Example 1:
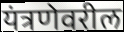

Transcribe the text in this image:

यंत्रणेवरील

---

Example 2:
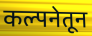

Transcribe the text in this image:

कल्पनेतून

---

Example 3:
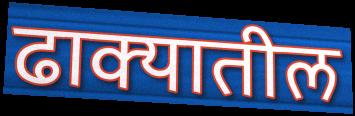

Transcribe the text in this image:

ढाक्यातील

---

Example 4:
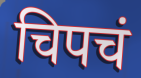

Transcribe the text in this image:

चिपचं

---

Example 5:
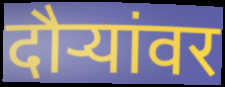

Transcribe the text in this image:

दौर्‍यांवर